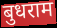
बुधराम